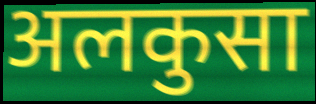
अलकुसा